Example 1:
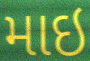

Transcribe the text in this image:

માઇ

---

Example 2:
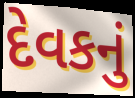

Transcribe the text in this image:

દેવકનું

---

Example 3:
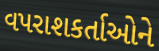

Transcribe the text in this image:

વપરાશકર્તાઓને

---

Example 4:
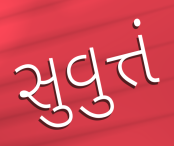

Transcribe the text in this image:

સુવુત્તં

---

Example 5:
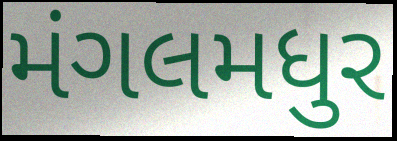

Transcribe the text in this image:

મંગલમધુર